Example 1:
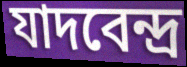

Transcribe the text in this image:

যাদবেন্দ্র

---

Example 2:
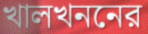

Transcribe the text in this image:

খালখননের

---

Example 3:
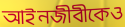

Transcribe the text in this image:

আইনজীবীকেও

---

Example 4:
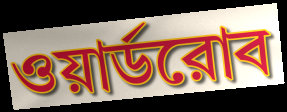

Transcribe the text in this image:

ওয়ার্ডরোব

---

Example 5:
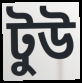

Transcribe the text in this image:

টুউ